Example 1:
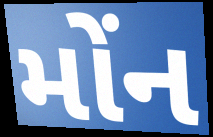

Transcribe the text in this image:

મોંન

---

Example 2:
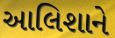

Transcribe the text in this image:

આલિશાને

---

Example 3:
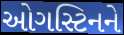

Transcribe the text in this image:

ઓગસ્ટિનને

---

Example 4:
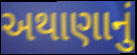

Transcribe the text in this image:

અથાણાનું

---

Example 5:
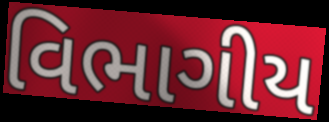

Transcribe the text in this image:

વિભાગીય